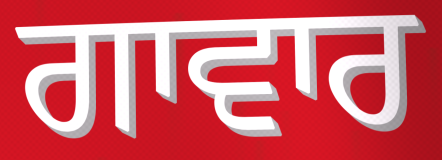
ਗਾਵਾਰ